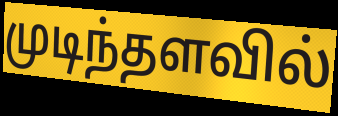
முடிந்தளவில்